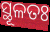
ସ୍ଥୂଳତଃ